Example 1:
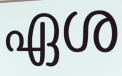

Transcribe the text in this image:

ഏശ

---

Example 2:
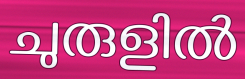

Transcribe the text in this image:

ചുരുളിൽ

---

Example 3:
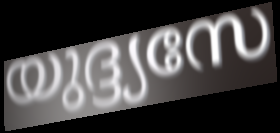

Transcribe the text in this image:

യുദ്ദ്യസേ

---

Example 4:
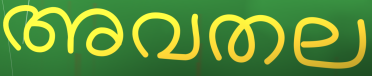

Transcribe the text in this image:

അവതല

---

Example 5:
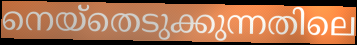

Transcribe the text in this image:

നെയ്തെടുക്കുന്നതിലെ